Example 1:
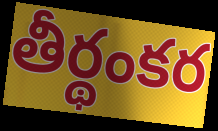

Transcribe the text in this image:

తీర్థంకర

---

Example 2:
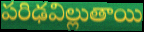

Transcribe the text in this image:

పరిఢవిల్లుతాయి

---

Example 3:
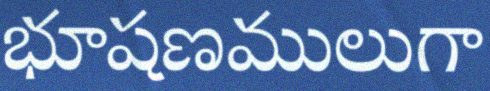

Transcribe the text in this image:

భూషణములుగా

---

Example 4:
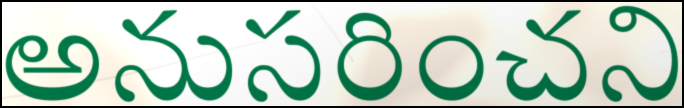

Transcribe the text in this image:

అనుసరించని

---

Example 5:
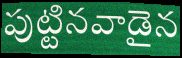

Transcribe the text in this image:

పుట్టినవాడైన